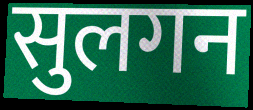
सुलगन